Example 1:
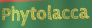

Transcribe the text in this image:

Phytolacca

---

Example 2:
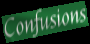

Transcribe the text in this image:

Confusions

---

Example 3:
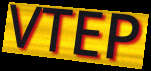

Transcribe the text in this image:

VTEP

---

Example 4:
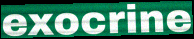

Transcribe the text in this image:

exocrine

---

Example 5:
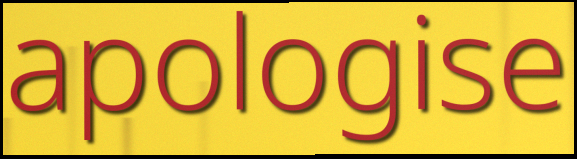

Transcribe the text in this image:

apologise